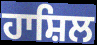
ਹਾਸ਼ਿਲ